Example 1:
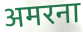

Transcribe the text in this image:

अमरना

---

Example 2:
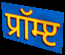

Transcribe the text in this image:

प्रॉम्प्ट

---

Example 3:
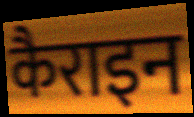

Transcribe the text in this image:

कैराइन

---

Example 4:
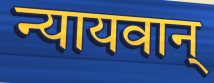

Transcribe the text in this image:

न्यायवान्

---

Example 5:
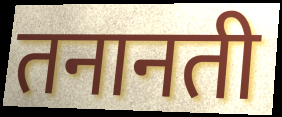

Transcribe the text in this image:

तनानती